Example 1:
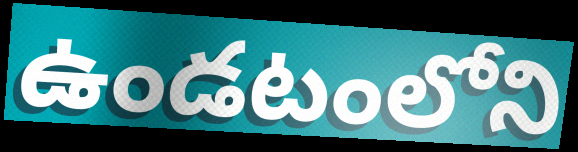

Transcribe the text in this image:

ఉండటంలోని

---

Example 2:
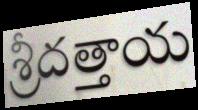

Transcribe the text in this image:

శ్రీదత్తాయ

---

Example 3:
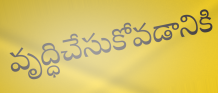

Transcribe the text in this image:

వృద్ధిచేసుకోవడానికి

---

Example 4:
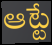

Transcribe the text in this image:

ఆట్టే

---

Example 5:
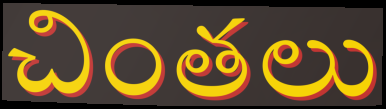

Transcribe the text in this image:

చింతలు